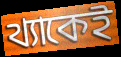
থ্যাকেই